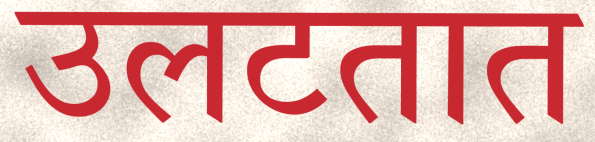
उलटतात